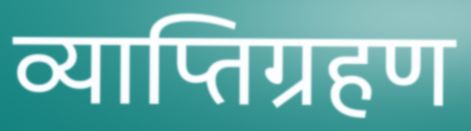
व्याप्तिग्रहण